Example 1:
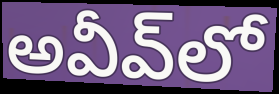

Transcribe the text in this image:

అవీవ్‌లో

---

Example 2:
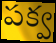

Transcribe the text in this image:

పక్వ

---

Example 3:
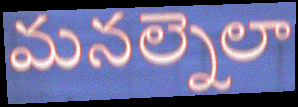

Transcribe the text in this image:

మనల్నెలా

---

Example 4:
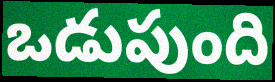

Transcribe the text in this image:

ఒడుపుంది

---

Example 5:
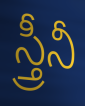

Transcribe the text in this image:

స్త్రీనీ